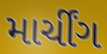
માર્ચીંગ